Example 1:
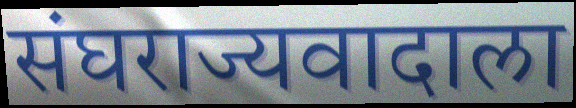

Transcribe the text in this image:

संघराज्यवादाला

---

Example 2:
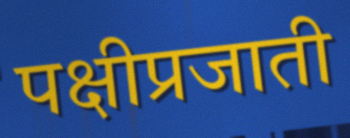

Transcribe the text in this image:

पक्षीप्रजाती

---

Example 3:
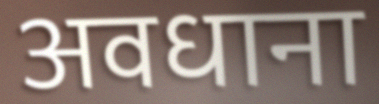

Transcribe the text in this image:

अवधाना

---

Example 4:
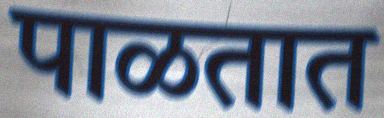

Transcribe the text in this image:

पाळतात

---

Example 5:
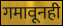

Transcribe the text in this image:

गमावूनही